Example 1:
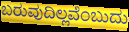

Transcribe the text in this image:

ಬರುವುದಿಲ್ಲವೆಂಬುದು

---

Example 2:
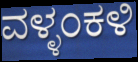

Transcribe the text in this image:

ವಳ್ಳಂಕಳಿ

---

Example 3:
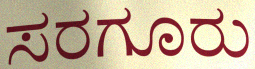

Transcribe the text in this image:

ಸರಗೂರು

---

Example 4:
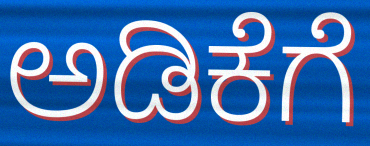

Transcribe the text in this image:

ಅಡಿಕೆಗೆ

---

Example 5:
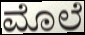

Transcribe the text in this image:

ಮೊಲೆ